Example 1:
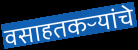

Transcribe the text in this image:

वसाहतकऱ्यांचे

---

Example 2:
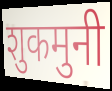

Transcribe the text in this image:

शुकमुनी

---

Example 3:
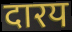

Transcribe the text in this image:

दारय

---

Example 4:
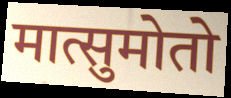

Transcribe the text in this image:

मात्सुमोतो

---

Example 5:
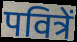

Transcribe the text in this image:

पवित्रें